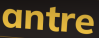
antre